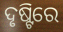
ଦୃଷ୍ଟିରେ